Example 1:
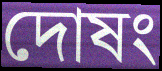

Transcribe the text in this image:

দোষং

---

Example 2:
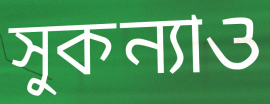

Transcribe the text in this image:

সুকন্যাও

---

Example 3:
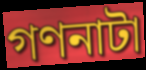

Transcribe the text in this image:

গণনাটা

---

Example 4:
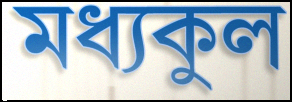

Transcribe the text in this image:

মধ্যকুল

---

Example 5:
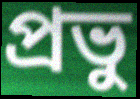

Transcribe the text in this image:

প্রভু